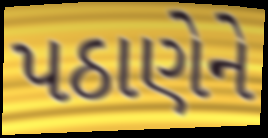
પઠાણેને